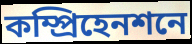
কম্প্রিহেনশনে